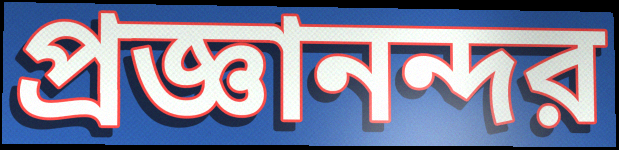
প্রজ্ঞানন্দর